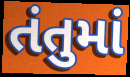
તંતુમાં